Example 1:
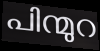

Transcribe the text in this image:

പിന്മുറ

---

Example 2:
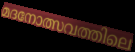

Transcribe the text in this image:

മദനോത്സവത്തിലെ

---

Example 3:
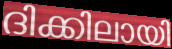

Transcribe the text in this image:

ദിക്കിലായി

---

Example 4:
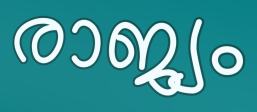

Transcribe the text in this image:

രാജ്യം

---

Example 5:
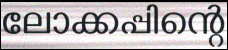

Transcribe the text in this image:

ലോക്കപ്പിന്റെ